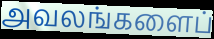
அவலங்களைப்